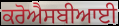
ਕਰੋਐਸਬੀਆਈ